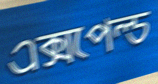
এক্সপেল্ড